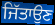
ਜਿੱਤਾਉਣ